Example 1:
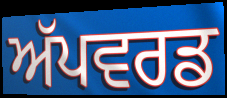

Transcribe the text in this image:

ਅੱਪਵਰਡ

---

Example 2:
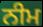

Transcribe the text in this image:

ਨੀਮ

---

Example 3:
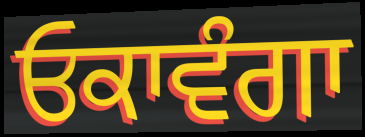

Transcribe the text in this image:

ਓਕਾਵੰਗਾ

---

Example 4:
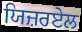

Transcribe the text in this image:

ਯਿਜ਼ਰਏਲ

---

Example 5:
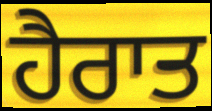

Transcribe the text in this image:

ਹੈਰਾਤ